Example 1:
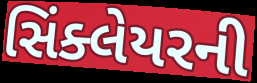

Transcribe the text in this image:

સિંક્લેયરની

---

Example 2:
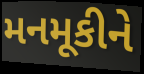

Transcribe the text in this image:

મનમૂકીને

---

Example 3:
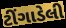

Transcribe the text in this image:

ટીંગાડેલી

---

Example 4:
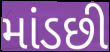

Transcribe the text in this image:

માંડછી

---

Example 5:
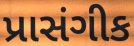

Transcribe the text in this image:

પ્રાસંગીક